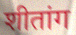
शीतांग